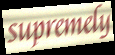
supremely